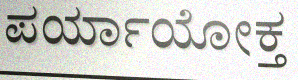
ಪರ್ಯಾಯೋಕ್ತ